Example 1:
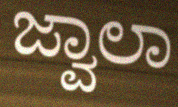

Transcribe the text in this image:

ಜ್ವಾಲಾ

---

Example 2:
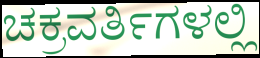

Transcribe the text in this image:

ಚಕ್ರವರ್ತಿಗಳಲ್ಲಿ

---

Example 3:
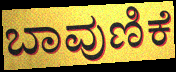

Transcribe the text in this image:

ಬಾವುಣಿಕೆ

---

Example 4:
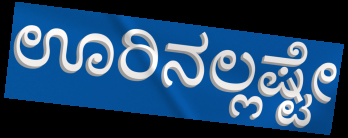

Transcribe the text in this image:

ಊರಿನಲ್ಲಷ್ಟೇ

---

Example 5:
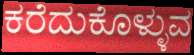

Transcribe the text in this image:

ಕರೆದುಕೊಳ್ಳುವ